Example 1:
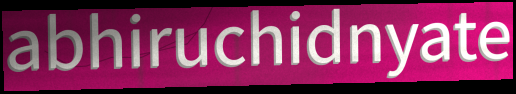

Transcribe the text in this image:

abhiruchidnyate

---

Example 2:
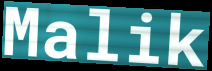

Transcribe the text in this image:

Malik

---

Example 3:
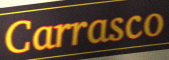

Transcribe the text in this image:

Carrasco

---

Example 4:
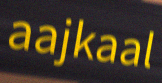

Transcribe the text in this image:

aajkaal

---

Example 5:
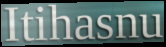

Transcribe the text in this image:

Itihasnu